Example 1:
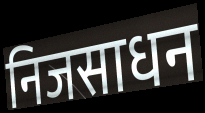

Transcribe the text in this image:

निजसाधन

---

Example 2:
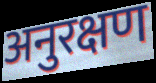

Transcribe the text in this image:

अनुरक्षण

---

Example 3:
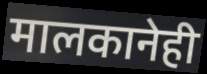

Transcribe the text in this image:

मालकानेही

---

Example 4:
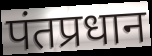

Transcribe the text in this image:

पंतप्रधान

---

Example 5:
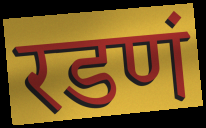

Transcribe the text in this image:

रडणं